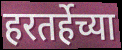
हरतर्हेच्या